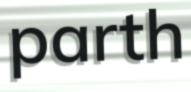
parth